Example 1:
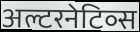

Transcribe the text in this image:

अल्टरनेटिव्स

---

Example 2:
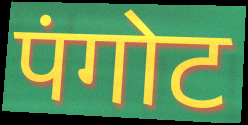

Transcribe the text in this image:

पंगोट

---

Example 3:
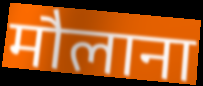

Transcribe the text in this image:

मौलाना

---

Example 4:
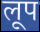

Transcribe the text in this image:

लूप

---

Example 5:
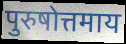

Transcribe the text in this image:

पुरुषोत्तमाय